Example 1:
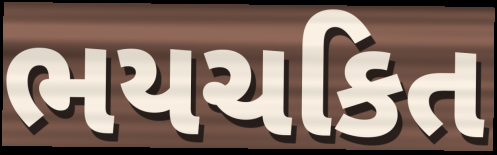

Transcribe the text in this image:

ભયચકિત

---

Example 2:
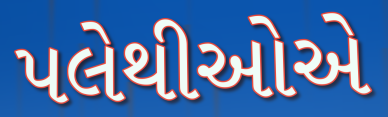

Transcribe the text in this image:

પલેથીઓએ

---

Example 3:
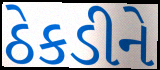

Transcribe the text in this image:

ઠેકડીને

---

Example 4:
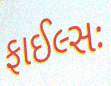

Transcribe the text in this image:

ફાઈલ્સઃ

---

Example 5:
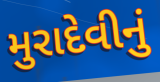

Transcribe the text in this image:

મુરાદેવીનું